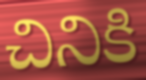
చినికి